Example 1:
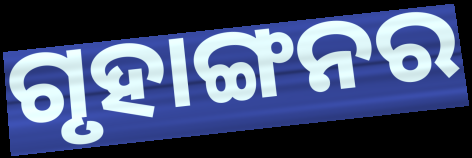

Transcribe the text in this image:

ଗୃହାଙ୍ଗନର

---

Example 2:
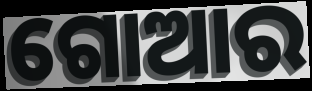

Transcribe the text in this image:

ଗୋଆର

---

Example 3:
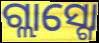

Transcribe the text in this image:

ଗ୍ଲାସ୍ଗୋ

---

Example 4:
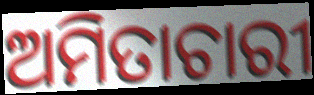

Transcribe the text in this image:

ଅମିତାଚାରୀ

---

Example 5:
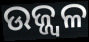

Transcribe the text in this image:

ଉଜ୍ଜ୍ବଳ